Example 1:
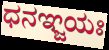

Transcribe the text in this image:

ಧನಞ್ಜಯಃ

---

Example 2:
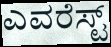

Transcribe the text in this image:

ಎವರೆಸ್ಟ್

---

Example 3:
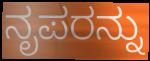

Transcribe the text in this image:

ನೃಪರನ್ನು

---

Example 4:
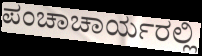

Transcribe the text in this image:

ಪಂಚಾಚಾರ್ಯರಲ್ಲಿ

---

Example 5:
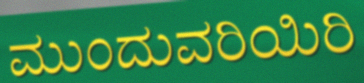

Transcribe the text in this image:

ಮುಂದುವರಿಯಿರಿ